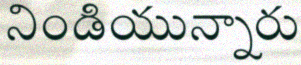
నిండియున్నారు